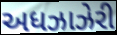
અધઝાઝેરી